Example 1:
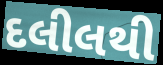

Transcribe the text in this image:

દલીલથી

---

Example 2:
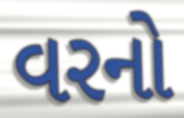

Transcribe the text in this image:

વરનો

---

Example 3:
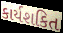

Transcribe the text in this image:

કાર્યશકિત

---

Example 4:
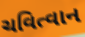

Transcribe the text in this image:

ચવિત્વાન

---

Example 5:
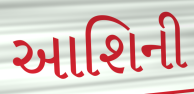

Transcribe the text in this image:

આશિની